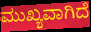
ಮುಖ್ಯವಾಗಿದೆ